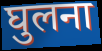
घुलना